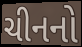
ચીનનો